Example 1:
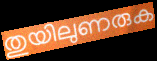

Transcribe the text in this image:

തുയിലുണരുക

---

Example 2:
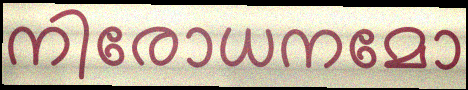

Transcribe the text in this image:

നിരോധനമോ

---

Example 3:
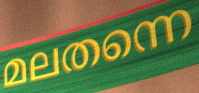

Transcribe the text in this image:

മലതന്നെ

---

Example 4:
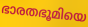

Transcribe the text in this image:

ഭാരതഭൂമിയെ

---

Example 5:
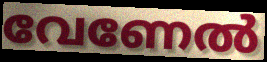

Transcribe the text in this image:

വേണേൽ